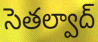
సెతల్వాద్